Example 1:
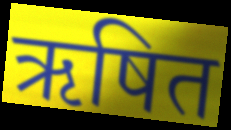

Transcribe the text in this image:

ऋषित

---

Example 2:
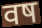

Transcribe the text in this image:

वष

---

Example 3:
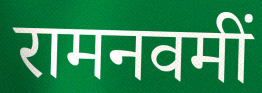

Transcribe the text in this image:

रामनवमीं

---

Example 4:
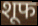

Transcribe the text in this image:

शूफ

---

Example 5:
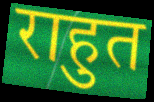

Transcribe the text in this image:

राहुत